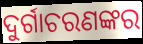
ଦୁର୍ଗାଚରଣଙ୍କର